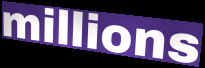
millions